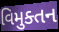
વિમુક્તન